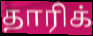
தாரிக்